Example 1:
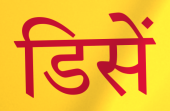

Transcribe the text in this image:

डिसें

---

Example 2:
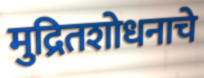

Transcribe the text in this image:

मुद्रितशोधनाचे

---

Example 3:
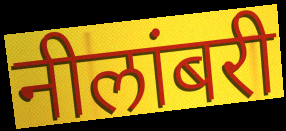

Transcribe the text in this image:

नीलांबरी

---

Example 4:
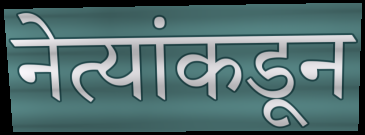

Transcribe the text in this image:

नेत्यांकडून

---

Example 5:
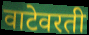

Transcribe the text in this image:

वाटेवरती